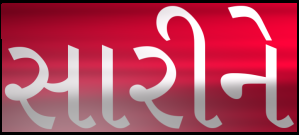
સારીને